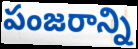
పంజరాన్ని